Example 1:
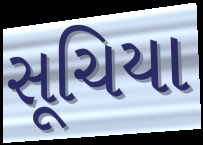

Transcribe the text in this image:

સૂચિયા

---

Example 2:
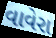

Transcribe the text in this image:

વાવેરા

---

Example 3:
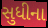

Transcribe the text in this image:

સુધીના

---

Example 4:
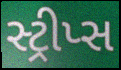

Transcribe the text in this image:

સ્ટ્રીપ્સ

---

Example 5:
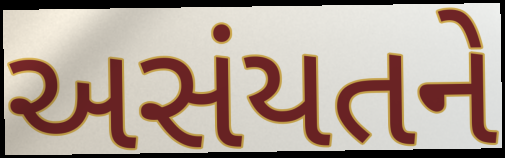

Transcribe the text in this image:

અસંયતને